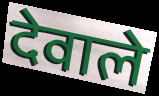
देवाले